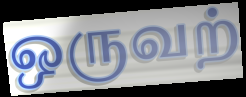
ஒருவற்